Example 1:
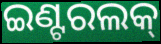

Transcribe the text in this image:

ଇଣ୍ଟରଲକ୍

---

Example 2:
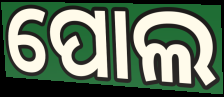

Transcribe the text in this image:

ପୋଲ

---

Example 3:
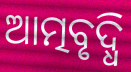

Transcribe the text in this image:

ଆତ୍ମବୃଦ୍ଧି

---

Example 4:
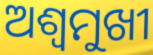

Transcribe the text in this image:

ଅଶ୍ୱମୁଖୀ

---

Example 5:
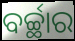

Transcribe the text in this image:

ବର୍ଚ୍ଛାର